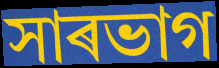
সাৰভাগ